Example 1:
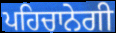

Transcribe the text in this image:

ਪਹਿਚਾਨੇਗੀ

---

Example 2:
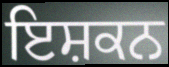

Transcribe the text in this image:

ਇਸ਼ਕਨ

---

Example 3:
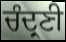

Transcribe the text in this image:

ਚੰਦ੍ਰਣੀ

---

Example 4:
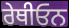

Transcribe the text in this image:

ਰੇਥੀਓਨ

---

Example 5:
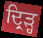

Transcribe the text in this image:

ਦ੍ਰਿੜ੍ਹ